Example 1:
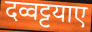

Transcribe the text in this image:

दव्वट्टयाए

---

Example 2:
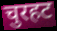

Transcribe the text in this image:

चुरहट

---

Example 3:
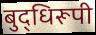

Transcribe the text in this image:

बुद्धिरूपी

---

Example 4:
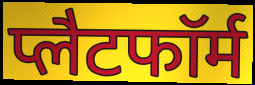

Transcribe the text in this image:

प्लैटफॉर्म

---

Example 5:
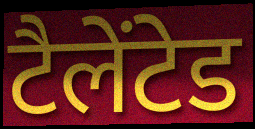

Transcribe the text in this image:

टैलेंटेड